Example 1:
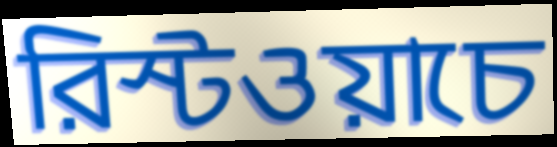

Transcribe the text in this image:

রিস্টওয়াচে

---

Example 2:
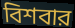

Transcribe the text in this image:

বিশবার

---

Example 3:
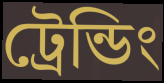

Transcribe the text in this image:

ট্রেন্ডিং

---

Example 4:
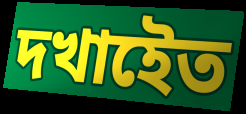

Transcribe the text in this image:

দখাইেত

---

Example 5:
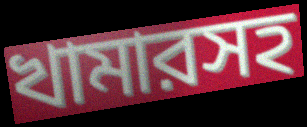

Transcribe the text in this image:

খামারসহ